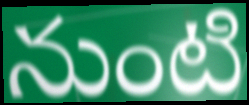
నుంటి